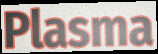
Plasma